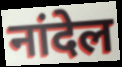
नांदेल